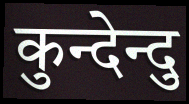
कुन्देन्दु